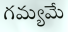
గమ్యమే